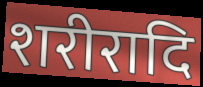
शरीरादि